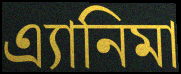
এ্যানিমা